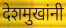
देशमुखांनी